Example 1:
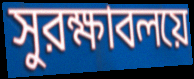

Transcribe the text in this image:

সুরক্ষাবলয়ে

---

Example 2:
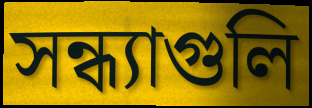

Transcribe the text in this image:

সন্ধ্যাগুলি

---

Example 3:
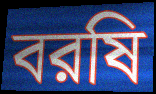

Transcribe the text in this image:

বরষি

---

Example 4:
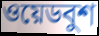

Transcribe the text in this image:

ওয়েডবুশ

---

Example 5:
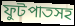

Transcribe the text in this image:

ফুটপাতসহ